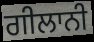
ਗੀਲਾਨੀ